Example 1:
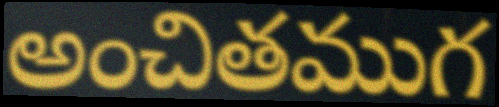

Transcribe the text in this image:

అంచితముగ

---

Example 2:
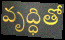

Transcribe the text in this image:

వృద్ధితో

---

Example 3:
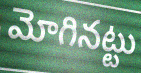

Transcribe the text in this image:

మోగినట్టు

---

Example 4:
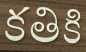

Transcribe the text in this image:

కతికి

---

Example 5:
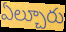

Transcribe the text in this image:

ఏల్చూరు